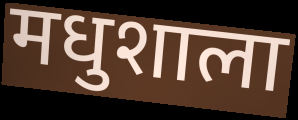
मधुशाला